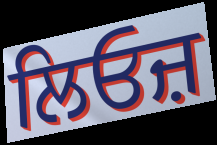
ਲਿਓਜ਼